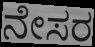
ನೇಸರ